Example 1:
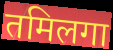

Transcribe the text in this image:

तमिलगा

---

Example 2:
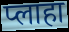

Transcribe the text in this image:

प्लाहा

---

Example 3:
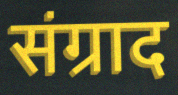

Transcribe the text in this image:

संग्राद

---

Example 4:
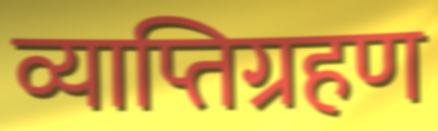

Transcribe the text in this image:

व्याप्तिग्रहण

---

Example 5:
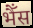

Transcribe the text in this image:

भैँस